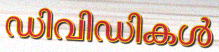
ഡിവിഡികൾ